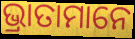
ଭ୍ରାତାମାନେ